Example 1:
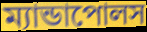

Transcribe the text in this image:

ম্যান্ডাপোলস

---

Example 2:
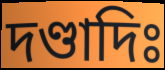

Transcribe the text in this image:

দণ্ডাদিঃ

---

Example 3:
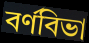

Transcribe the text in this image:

বর্ণবিভা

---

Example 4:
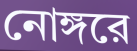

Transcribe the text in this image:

নোঙ্গরে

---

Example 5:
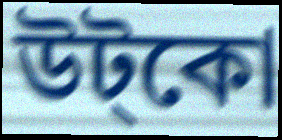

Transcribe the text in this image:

উট্কো